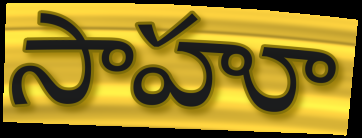
సాహూ